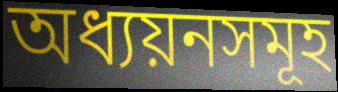
অধ্যয়নসমূহ